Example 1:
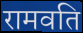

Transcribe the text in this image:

रामवति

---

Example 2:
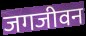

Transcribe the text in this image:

जगजीवन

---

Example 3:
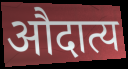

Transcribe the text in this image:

औदात्य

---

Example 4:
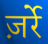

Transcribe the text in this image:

ज़र्रे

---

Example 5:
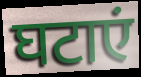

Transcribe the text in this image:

घटाएं